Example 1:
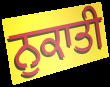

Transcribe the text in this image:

ਨੁਕਾਤੀ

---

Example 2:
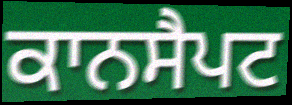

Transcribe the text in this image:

ਕਾਨਸੈਪਟ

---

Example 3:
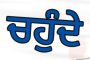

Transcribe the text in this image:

ਚਹੁੰਦੇ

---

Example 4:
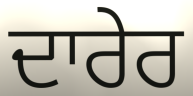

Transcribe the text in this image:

ਦਾਰੇਰ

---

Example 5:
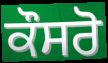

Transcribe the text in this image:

ਕੌਸਰੋ